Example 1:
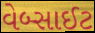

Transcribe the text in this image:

વેબ્સાઈટ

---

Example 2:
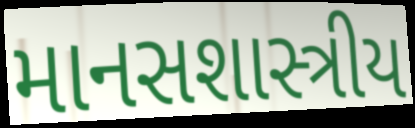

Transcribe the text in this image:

માનસશાસ્ત્રીય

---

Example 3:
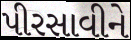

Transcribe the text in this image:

પીરસાવીને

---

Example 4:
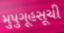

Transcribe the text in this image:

મુપુગૂહસૂચી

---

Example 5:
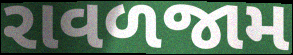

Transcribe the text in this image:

રાવળજામ